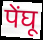
पेंघू